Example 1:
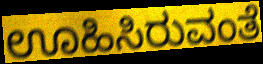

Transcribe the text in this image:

ಊಹಿಸಿರುವಂತೆ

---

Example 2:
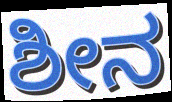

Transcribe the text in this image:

ಶೀನ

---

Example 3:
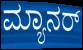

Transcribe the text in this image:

ಮ್ಯಾನರ್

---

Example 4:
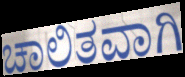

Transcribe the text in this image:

ಚಾಲಿತವಾಗಿ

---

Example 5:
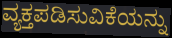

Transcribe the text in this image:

ವ್ಯಕ್ತಪಡಿಸುವಿಕೆಯನ್ನು